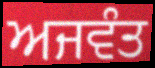
ਅਜਵੰਤ